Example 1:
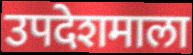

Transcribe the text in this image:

उपदेशमाला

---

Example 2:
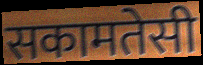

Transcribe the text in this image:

सकामतेसी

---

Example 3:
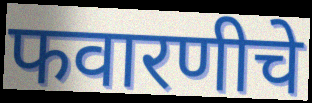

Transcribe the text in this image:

फवारणीचे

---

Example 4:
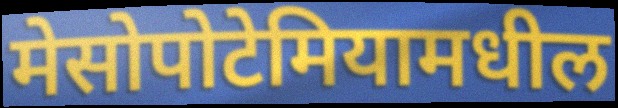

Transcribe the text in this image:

मेसोपोटेमियामधील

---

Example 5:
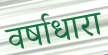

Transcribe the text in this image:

वर्षाधारा